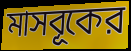
মাসবূকের